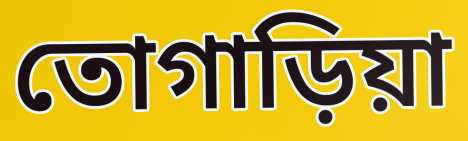
তোগাড়িয়া